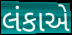
લંકાએ